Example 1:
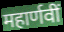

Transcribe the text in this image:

महार्णवीं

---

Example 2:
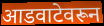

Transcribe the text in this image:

आडवाटेवरून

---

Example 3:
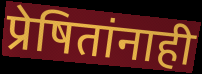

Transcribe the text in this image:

प्रेषितांनाही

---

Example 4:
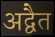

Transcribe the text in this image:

अद्वैत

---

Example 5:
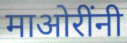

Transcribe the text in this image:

माओरींनी